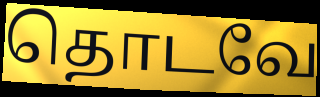
தொடவே